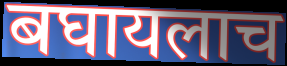
बघायलाच